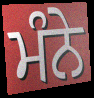
ਮੰਨੇ